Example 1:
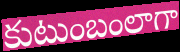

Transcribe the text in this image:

కుటుంబంలాగా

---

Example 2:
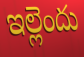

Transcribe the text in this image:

ఇల్లెందు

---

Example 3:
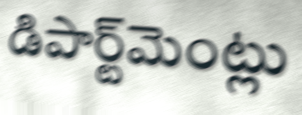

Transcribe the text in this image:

డిపార్ట్‌మెంట్లు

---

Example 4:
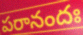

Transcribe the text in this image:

పరానందః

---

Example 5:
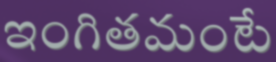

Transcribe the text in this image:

ఇంగితమంటే